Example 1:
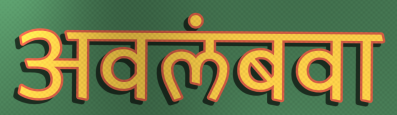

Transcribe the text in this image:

अवलंबवा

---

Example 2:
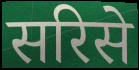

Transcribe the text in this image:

सरिसे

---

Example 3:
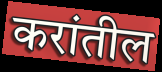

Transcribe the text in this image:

करांतील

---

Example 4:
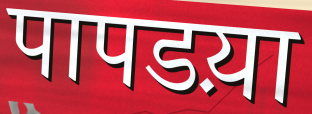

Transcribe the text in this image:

पापडय़ा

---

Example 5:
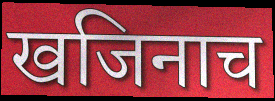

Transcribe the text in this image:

खजिनाच